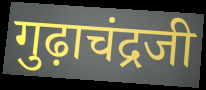
गुढ़ाचंद्रजी